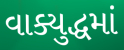
વાક્યુદ્ધમાં